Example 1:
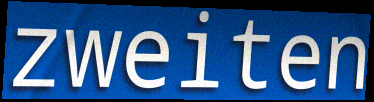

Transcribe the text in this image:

zweiten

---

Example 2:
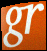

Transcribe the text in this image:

gr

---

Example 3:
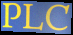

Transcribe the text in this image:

PLC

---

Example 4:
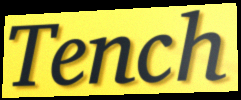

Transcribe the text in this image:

Tench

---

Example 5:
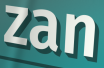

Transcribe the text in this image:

zan